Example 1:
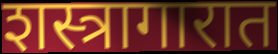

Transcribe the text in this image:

शस्त्रागारात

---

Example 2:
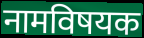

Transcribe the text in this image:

नामविषयक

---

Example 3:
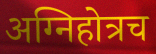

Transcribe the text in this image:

अग्निहोत्रच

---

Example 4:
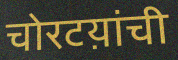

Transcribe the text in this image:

चोरटय़ांची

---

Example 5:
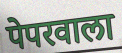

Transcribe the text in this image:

पेपरवाला